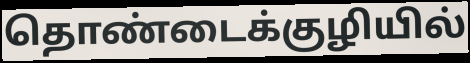
தொண்டைக்குழியில்